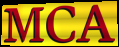
MCA